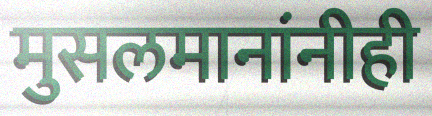
मुसलमानांनीही